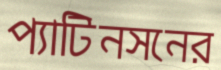
প্যাটিনসনের